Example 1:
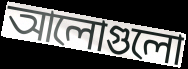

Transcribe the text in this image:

আলোগুলো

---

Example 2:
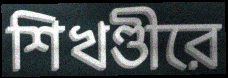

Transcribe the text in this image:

শিখণ্ডীরে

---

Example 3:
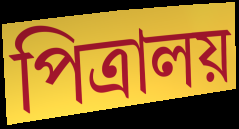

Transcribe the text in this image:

পিত্রালয়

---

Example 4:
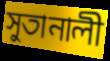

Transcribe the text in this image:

সুতানালী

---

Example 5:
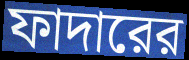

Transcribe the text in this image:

ফাদারের